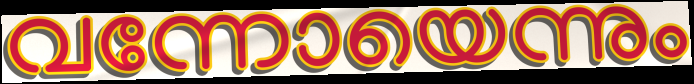
വന്നോയെന്നും